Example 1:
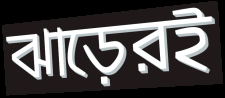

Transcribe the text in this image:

ঝাড়েরই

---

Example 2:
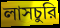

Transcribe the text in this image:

লাসচুরি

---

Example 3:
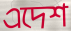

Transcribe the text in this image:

এদেশ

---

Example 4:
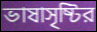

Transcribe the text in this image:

ভাষাসৃষ্টির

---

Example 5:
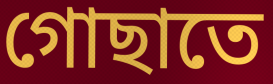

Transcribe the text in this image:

গোছাতে